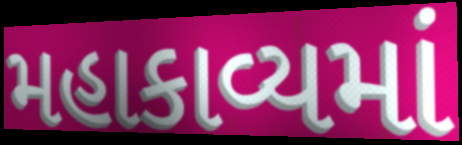
મહાકાવ્યમાં